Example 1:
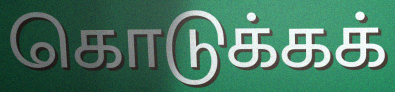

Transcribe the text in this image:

கொடுக்கக்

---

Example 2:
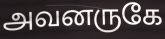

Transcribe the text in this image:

அவனருகே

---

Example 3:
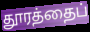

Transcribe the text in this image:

தூரத்தைப்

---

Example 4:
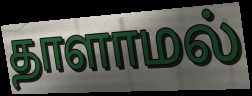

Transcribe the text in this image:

தாளாமல்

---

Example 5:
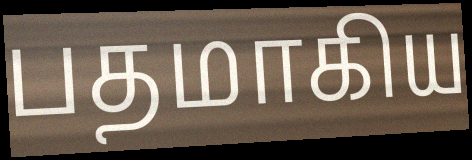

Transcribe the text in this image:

பதமாகிய